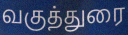
வகுத்துரை